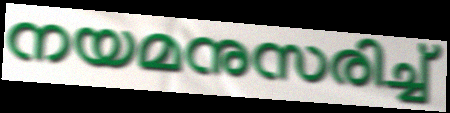
നയമനുസരിച്ച്